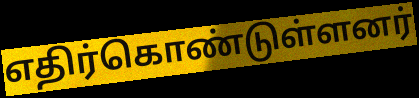
எதிர்கொண்டுள்ளனர்